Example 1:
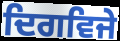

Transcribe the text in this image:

ਦਿਗਵਿਜੇ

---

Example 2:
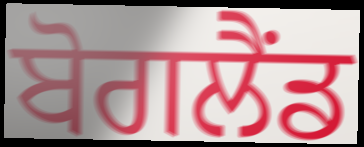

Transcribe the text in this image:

ਬੋਗਲੈਂਡ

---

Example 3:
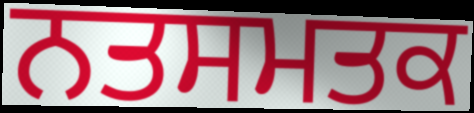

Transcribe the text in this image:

ਨਤਸਮਤਕ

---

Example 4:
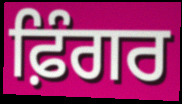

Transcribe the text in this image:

ਫ਼ਿੰਗਰ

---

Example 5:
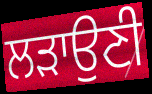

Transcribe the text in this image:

ਲੜਾਉਣੀ